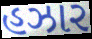
હઝાર